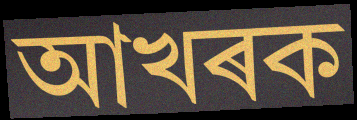
আখৰক